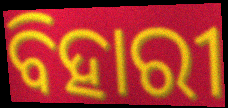
ବିହାରୀ